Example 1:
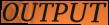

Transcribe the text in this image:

OUTPUT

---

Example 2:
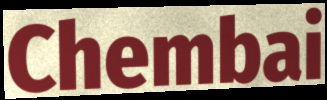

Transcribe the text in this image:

Chembai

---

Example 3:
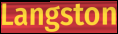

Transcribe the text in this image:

Langston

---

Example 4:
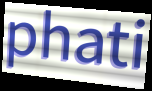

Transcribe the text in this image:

phati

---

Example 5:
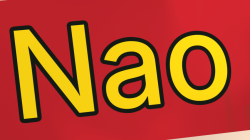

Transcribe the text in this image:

Nao